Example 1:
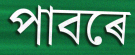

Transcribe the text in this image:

পাবৰে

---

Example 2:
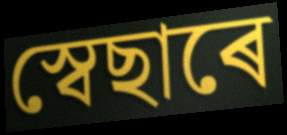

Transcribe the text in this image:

স্বেছাৰে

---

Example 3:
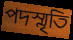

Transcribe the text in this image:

পদস্মৃতি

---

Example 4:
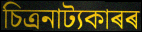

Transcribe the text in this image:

চিত্ৰনাট্যকাৰৰ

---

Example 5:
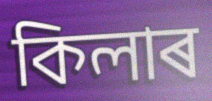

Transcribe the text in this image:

কিলাৰ